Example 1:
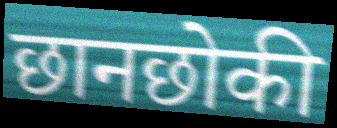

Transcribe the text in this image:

छानछोकी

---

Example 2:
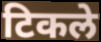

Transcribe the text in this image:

टिकले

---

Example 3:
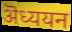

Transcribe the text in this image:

ऄध्ययन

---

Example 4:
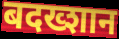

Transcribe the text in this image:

बदख्शान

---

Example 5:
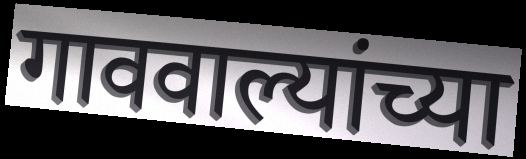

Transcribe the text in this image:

गाववाल्यांच्या